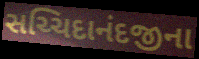
સચ્ચિદાનંદજીના